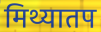
मिथ्यातप